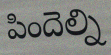
పిందెల్ని